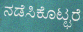
ನಡೆಸಿಕೊಟ್ಟರೆ